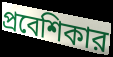
প্রবেশিকার